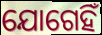
ଯୋଗେହିଁ